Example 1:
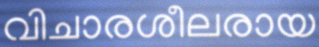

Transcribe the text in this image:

വിചാരശീലരായ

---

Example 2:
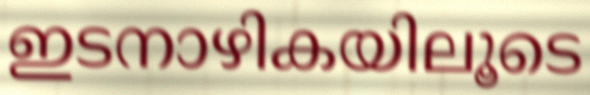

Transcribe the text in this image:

ഇടനാഴികയിലൂടെ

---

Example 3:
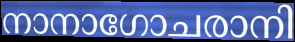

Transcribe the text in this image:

നാനാഗോചരാനി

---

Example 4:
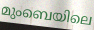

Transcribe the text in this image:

മുംബെയിലെ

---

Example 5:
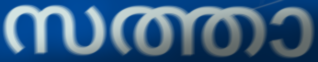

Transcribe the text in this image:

സത്താ